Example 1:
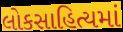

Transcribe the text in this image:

લોકસાહિત્યમાં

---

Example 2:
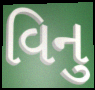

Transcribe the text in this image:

વિનુ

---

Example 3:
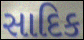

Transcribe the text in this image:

સાદિક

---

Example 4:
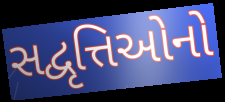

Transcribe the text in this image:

સદ્વૃત્તિઓનો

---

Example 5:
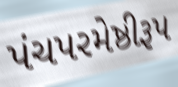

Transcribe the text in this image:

પંચપરમેષ્ઠીરૂપ